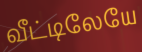
வீட்டிலேயே